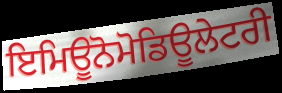
ਇਮਿਊਨੋਮੋਡਿਊਲੇਟਰੀ